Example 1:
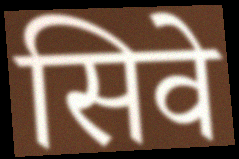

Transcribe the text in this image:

सिवे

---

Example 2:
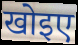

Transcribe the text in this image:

खोइए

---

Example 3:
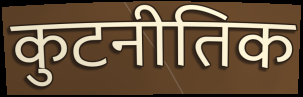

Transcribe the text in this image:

कुटनीतिक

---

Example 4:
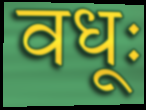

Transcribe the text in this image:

वधूः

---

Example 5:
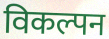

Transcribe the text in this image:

विकल्पन